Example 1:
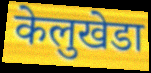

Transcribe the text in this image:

केलुखेडा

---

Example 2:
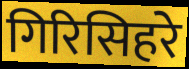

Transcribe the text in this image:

गिरिसिहरे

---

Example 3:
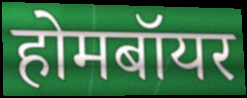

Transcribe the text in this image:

होमबॉयर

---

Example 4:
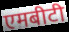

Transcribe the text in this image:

एमबीटी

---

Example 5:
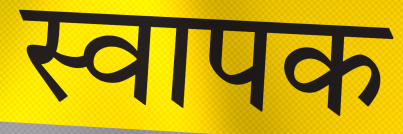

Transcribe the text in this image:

स्‍वापक